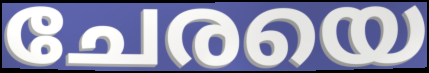
ചേരയെ